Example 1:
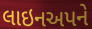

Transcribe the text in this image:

લાઇનઅપને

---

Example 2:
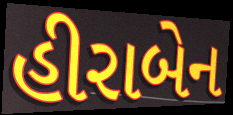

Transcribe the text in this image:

હીરાબેન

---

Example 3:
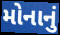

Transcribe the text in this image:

મોનાનું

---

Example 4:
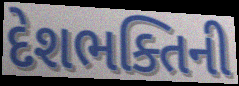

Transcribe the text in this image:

દેશભક્તિની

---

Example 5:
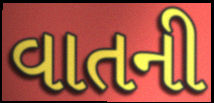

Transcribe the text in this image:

વાતની